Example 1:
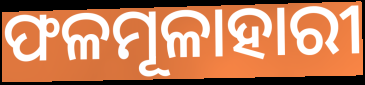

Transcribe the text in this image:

ଫଳମୂଳାହାରୀ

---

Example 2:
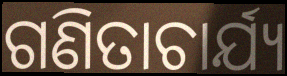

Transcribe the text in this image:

ଗଣିତାଚାର୍ଯ୍ୟ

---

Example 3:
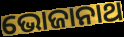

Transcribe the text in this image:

ଭୋଜାନାଥ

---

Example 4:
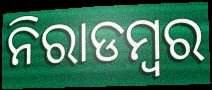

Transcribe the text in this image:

ନିରାଡମ୍ଵର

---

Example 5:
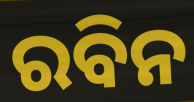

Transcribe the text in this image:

ରବିନ